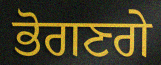
ਭੋਗਣਗੇ